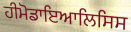
ਹੀਮੋਡਾਇਆਲਿਸਿਸ